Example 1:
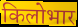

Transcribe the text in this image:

किलोभार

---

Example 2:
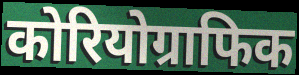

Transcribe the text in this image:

कोरियोग्राफिक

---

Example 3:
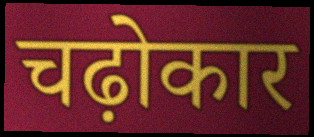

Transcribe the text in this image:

चढ़ोकार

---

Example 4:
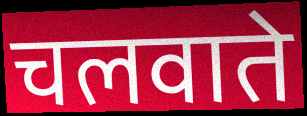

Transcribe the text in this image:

चलवाते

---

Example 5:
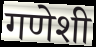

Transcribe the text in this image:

गणेशी